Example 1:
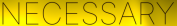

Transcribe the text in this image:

NECESSARY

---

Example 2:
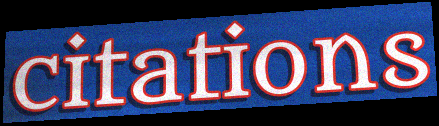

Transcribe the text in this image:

citations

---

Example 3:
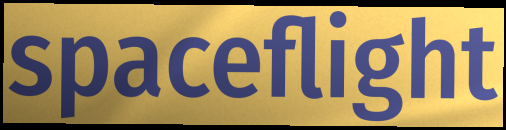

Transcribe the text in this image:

spaceflight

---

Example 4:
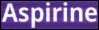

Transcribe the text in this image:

Aspirine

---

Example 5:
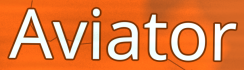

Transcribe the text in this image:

Aviator